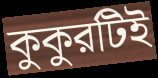
কুকুরটিই